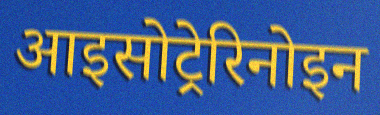
आइसोट्रेरिनोइन